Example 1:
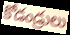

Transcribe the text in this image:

కోడండ్రులు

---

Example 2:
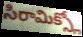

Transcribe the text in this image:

సిరామిక్స్లో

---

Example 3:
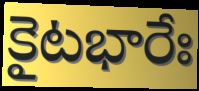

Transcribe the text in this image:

కైటభారేః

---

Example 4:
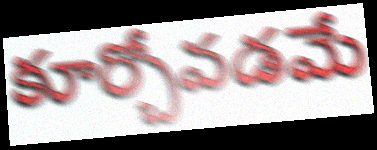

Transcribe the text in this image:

కూర్చోవడమే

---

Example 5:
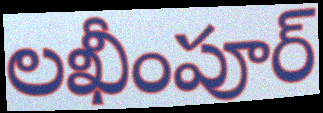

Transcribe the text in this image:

లఖీంపూర్